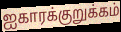
ஐகாரக்குறுக்கம்